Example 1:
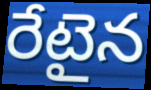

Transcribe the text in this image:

రేటైన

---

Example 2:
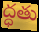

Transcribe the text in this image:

ద్ధతు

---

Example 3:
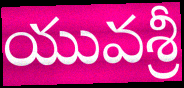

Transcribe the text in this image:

యువశ్రీ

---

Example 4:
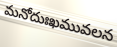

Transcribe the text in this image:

మనోదుఃఖమువలన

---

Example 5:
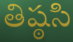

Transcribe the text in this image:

తిష్ఠసి